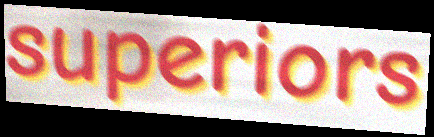
superiors